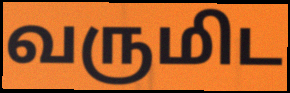
வருமிட